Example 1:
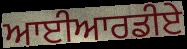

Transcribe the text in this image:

ਆਈਆਰਡੀਏ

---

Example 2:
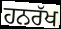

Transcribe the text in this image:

ਹਨਰੱਖ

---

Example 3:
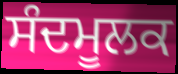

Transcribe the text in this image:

ਸੰਦਮੂਲਕ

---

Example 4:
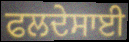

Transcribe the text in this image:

ਫਲਦੇਸਾਈ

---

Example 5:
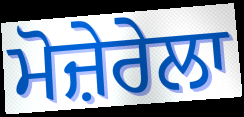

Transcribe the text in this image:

ਮੋਜ਼ੇਰੇਲਾ